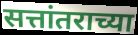
सत्तांतराच्या